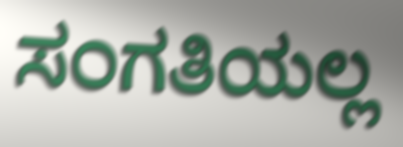
ಸಂಗತಿಯಲ್ಲ